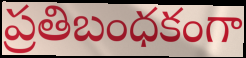
ప్రతిబంధకంగా